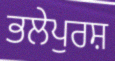
ਭਲੇਪੁਰਸ਼